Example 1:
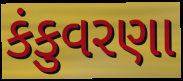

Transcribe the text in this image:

કંકુવરણા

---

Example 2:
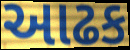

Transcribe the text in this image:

આઢક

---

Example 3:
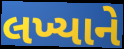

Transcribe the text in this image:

લખ્યાને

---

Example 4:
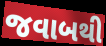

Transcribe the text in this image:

જવાબથી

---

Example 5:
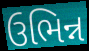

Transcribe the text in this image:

ઉભિન્ન